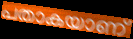
പതാകയാണ്